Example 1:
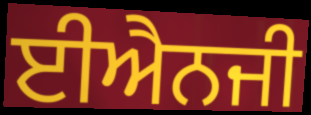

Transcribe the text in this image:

ਈਐਨਜੀ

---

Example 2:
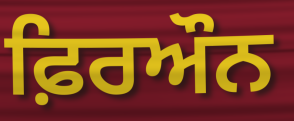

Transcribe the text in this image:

ਫ਼ਿਰਔਨ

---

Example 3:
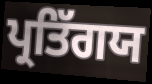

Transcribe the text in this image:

ਪ੍ਰਤਿੱਗਯ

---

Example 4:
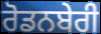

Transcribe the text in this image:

ਰੋਡਨਬੇਰੀ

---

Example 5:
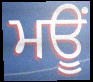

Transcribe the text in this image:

ਮਊਂ